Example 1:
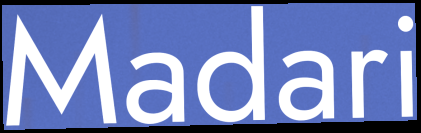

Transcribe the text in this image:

Madari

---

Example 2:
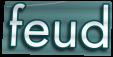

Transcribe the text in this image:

feud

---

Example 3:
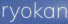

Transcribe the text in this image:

ryokan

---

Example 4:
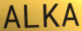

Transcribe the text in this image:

ALKA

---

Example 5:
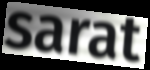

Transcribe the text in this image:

sarat